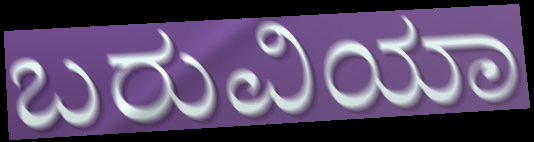
ಬರುವಿಯಾ